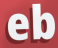
eb